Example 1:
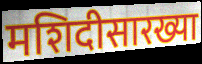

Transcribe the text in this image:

मशिदीसारख्या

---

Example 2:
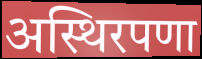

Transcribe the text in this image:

अस्थिरपणा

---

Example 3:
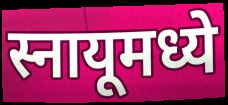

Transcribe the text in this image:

स्नायूमध्ये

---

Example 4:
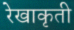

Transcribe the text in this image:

रेखाकृती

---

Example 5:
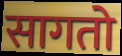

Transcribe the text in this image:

सागतो